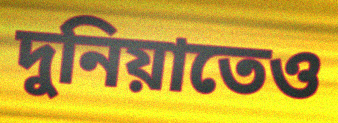
দুনিয়াতেও